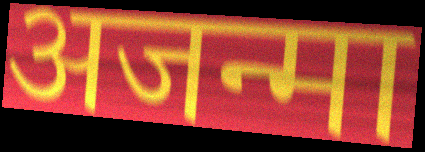
अजन्मा